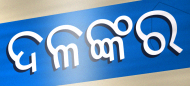
ଦଳଙ୍କର